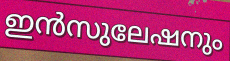
ഇൻസുലേഷനും